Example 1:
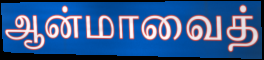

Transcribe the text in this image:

ஆன்மாவைத்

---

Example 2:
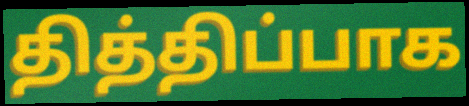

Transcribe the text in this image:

தித்திப்பாக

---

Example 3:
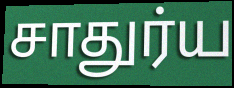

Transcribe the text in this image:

சாதுர்ய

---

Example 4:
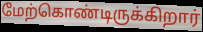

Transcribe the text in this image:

மேற்கொண்டிருக்கிறார்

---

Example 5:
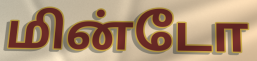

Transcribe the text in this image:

மின்டோ